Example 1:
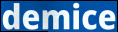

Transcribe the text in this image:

demice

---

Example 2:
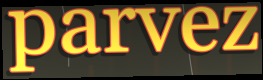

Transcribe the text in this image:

parvez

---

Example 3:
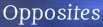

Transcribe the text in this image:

Opposites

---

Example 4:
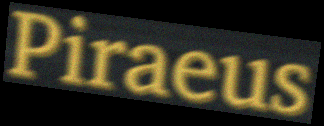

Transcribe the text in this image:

Piraeus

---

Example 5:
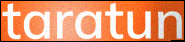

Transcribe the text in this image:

taratun